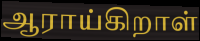
ஆராய்கிறாள்